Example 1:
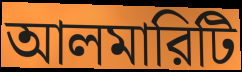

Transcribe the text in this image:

আলমারিটি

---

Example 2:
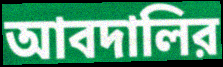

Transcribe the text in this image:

আবদালির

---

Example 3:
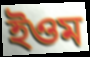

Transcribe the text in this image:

ইওম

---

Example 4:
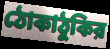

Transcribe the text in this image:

ঠোকাঠুকির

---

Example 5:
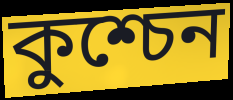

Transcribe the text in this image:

কুশ্চেন